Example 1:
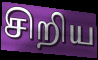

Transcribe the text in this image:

சிறிய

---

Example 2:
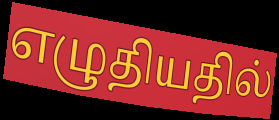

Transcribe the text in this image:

எழுதியதில்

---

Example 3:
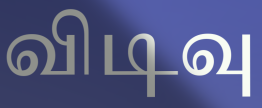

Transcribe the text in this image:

விடிவு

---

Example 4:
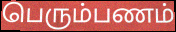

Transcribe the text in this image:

பெரும்பணம்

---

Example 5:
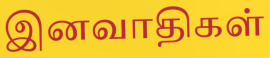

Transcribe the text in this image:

இனவாதிகள்